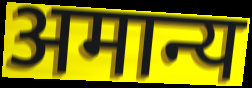
अमान्य